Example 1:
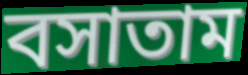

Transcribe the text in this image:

বসাতাম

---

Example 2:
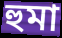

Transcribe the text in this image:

হুমা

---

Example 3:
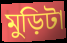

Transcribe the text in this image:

মুড়িটা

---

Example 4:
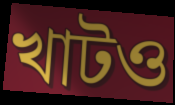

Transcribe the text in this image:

খাটও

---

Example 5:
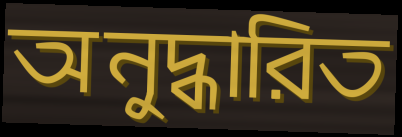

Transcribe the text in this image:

অনুদ্ধারিত